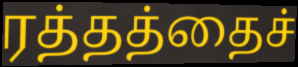
ரத்தத்தைச்